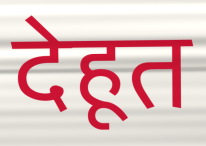
देहूत